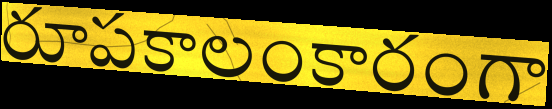
రూపకాలంకారంగా